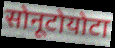
सोनूटोयोटा